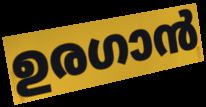
ഉരഗാൻ